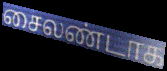
சைலண்டாக